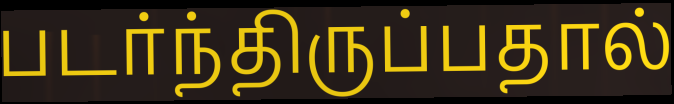
படர்ந்திருப்பதால்